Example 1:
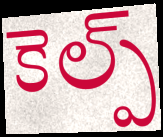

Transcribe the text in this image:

కెల్ప్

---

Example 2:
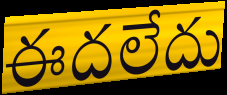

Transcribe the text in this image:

ఈదలేదు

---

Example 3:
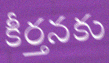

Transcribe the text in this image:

కీర్తనకు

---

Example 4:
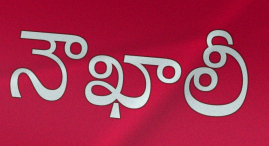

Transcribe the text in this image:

నౌఖాలీ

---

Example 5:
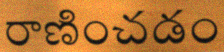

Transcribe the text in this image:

రాణించడం